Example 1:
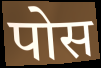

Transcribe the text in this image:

पोस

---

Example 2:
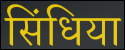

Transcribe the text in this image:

सिंधिया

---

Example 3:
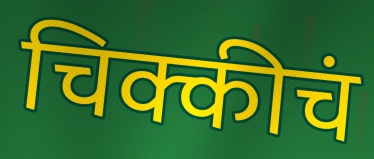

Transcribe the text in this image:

चिक्कीचं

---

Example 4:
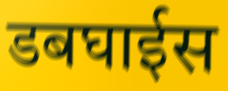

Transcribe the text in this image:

डबघाईस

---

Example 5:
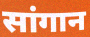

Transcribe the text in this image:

सांगान